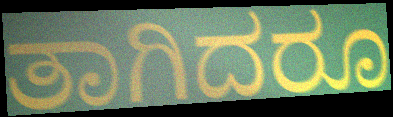
ತಾಗಿದರೂ